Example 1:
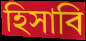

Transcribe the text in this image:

হিসাবি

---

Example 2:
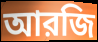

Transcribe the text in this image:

আরজি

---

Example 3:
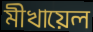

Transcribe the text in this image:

মীখায়েল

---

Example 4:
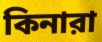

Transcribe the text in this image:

কিনারা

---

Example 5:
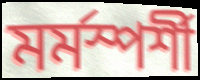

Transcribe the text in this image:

মর্মস্পর্শী